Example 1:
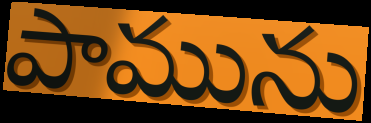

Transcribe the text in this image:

పామును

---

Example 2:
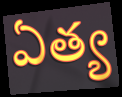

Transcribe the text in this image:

ఏత్య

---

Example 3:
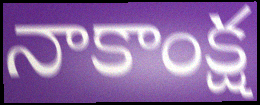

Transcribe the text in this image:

నాకాంక్ష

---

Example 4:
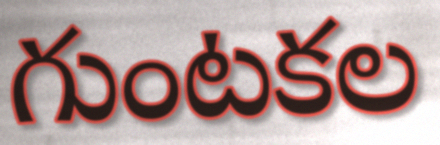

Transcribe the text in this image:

గుంటకల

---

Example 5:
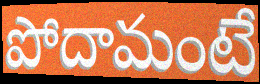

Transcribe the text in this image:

పోదామంటే